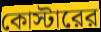
কোস্টারের